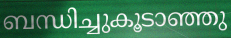
ബന്ധിച്ചുകൂടാഞ്ഞു